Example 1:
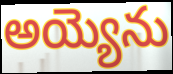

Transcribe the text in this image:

అయ్యెను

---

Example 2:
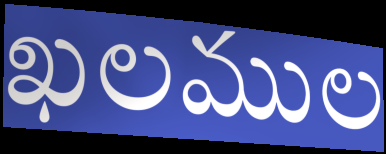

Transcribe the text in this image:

ఖలముల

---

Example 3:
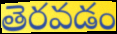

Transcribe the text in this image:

తెరవడం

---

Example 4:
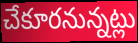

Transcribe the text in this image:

చేకూరనున్నట్లు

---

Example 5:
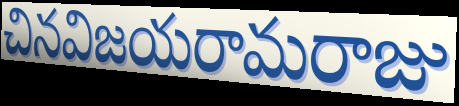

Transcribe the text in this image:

చినవిజయరామరాజు